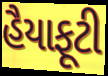
હૈયાફૂટી